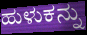
ಹುಳುಕನ್ನು